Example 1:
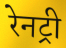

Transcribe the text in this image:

रेनट्री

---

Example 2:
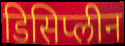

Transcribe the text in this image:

डिसिप्लीन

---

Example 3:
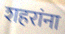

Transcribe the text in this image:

शहरांना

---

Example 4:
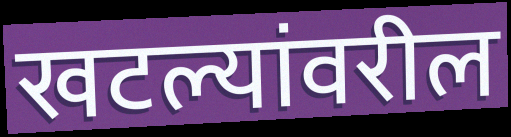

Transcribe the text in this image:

खटल्यांवरील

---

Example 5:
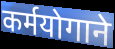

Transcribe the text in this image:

कर्मयोगाने